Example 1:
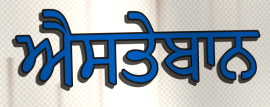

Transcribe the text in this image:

ਐਸਤੇਬਾਨ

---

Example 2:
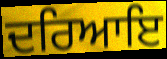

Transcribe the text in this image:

ਦਰਿਆਇ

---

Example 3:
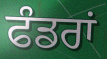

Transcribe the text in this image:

ਫੰਡਰਾਂ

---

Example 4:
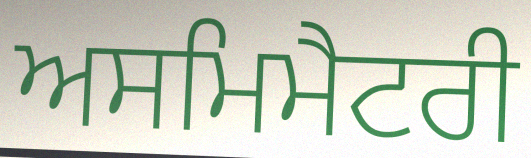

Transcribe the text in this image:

ਅਸਮਿਮੈਟਰੀ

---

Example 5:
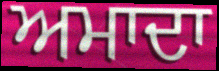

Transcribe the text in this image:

ਅਮਾਦਾ